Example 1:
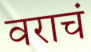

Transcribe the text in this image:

वराचं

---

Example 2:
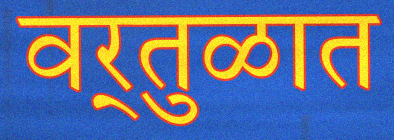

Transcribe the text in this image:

वर्तुळात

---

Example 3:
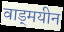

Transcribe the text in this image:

वाड्‌मयीन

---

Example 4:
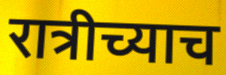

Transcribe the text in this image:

रात्रीच्याच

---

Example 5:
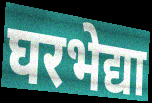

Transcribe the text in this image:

घरभेद्या